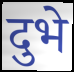
दुभे